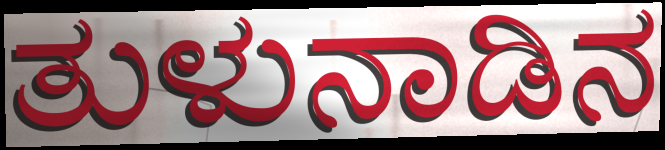
ತುಳುನಾಡಿನ